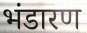
भंडारण